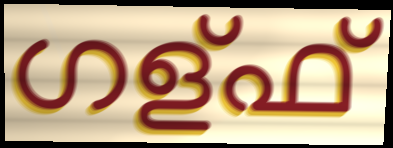
ഗള്ഫ്